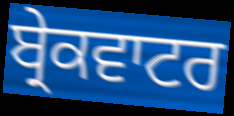
ਬ੍ਰੇਕਵਾਟਰ